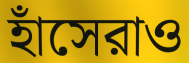
হাঁসেরাও